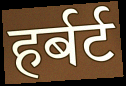
हर्बर्ट